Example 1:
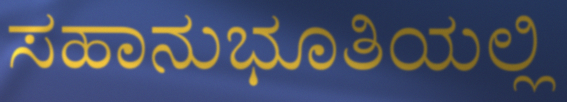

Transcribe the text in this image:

ಸಹಾನುಭೂತಿಯಲ್ಲಿ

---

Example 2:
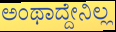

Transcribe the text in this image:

ಅಂಥಾದ್ದೇನಿಲ್ಲ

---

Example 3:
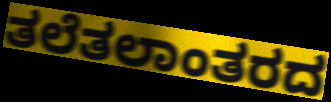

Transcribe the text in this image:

ತಲೆತಲಾಂತರದ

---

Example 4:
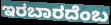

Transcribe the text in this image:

ಇರಬಾರದೆಂಬ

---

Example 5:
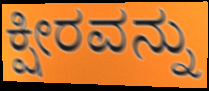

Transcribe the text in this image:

ಕ್ಷೀರವನ್ನು